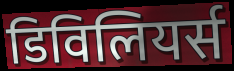
डिविलियर्स